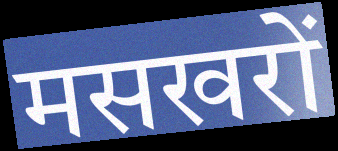
मसखरों